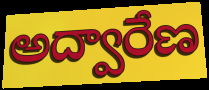
అద్వారేణ